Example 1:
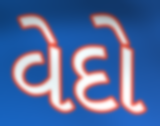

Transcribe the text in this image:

વેદો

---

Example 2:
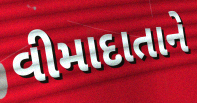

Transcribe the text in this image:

વીમાદાતાને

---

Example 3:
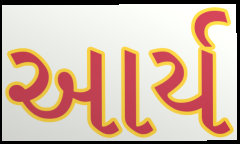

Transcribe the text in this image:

આર્ય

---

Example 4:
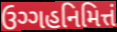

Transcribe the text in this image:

ઉગ્ગહનિમિત્તં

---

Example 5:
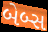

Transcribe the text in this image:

બેબ્સ